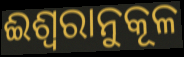
ଈଶ୍ଵରାନୁକୂଳ